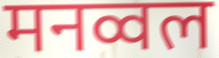
मनव्वल